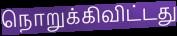
நொறுக்கிவிட்டது